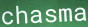
chasma